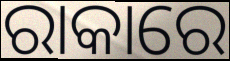
ରାକାରେ